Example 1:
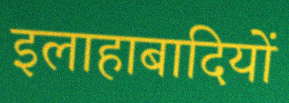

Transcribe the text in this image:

इलाहाबादियों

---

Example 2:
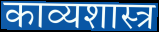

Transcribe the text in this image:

काव्यशास्त्र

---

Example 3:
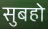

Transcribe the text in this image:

सुबहो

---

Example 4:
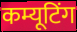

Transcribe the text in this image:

कम्यूटिंग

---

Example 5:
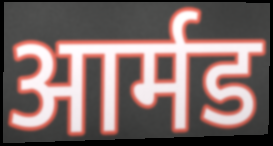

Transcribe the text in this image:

आर्मड